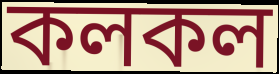
কলকল